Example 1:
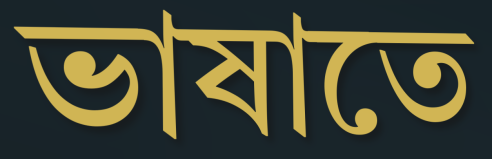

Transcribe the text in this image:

ভাষাতে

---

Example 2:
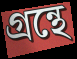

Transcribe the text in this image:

গ্রন্থে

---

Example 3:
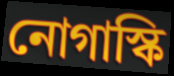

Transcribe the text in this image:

নোগাস্কি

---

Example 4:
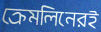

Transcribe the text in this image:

ক্রেমলিনেরই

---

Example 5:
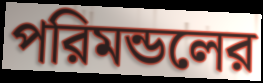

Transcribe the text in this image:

পরিমন্ডলের